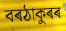
বৰঠাকুৰৰ